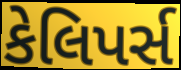
કેલિપર્સ